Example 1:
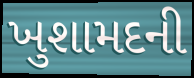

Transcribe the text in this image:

ખુશામદની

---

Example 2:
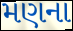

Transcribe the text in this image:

મણના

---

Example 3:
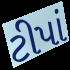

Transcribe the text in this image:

ટીપાં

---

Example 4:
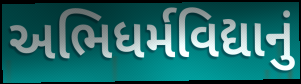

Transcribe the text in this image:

અભિધર્મવિદ્યાનું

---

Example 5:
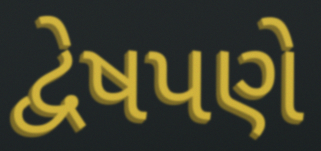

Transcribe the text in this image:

દ્વેષપણે